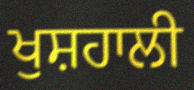
ਖੁਸ਼ਹਾਲੀ